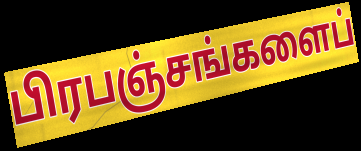
பிரபஞ்சங்களைப்